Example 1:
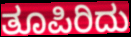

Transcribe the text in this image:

ತೂಪಿರಿದು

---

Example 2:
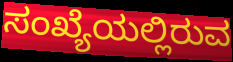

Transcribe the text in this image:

ಸಂಖ್ಯೆಯಲ್ಲಿರುವ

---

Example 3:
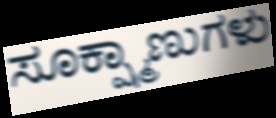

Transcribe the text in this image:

ಸೂಕ್ಷ್ಮಾಣುಗಳು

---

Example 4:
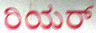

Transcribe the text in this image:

ರಿಯರ್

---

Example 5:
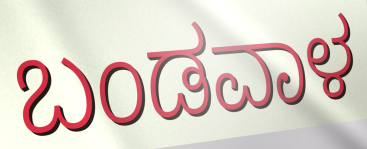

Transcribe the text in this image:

ಬಂಡವಾಳ